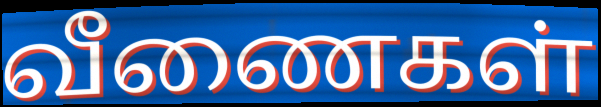
வீணைகள்